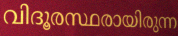
വിദൂരസ്ഥരായിരുന്ന